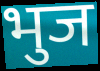
भुज